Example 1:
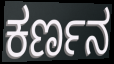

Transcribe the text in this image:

ಕರ್ಣನ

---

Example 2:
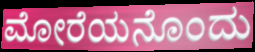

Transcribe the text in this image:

ಮೋರೆಯನೊಂದು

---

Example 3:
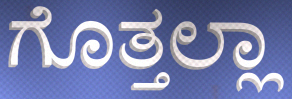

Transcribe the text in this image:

ಗೊತ್ತಲ್ಲಾ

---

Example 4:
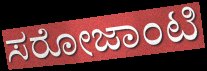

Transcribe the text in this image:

ಸರೋಜಾಂಟಿ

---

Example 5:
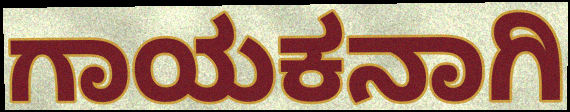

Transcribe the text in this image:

ಗಾಯಕನಾಗಿ